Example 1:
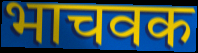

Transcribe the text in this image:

भाचवक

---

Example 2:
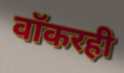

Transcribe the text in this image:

वॉकरही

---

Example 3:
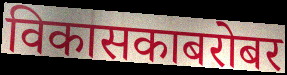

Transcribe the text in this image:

विकासकाबरोबर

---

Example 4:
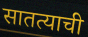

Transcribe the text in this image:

सातत्याची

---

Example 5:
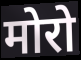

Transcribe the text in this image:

मोरो